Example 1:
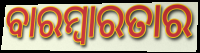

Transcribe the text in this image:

ବାରମ୍ବାରତାର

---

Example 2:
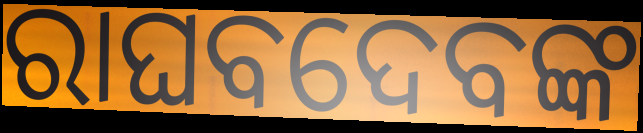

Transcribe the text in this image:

ରାଘବଦେବଙ୍କ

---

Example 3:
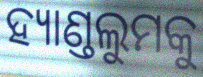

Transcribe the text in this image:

ହ୍ୟାଣ୍ଡଲୁମକୁ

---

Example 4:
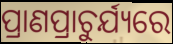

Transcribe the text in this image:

ପ୍ରାଣପ୍ରାଚୁର୍ଯ୍ୟରେ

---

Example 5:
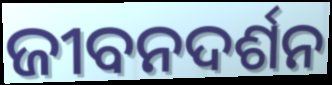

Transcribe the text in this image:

ଜୀବନଦର୍ଶନ